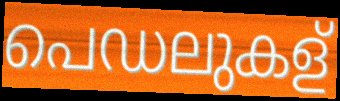
പെഡലുകള്